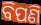
ବିପଣି